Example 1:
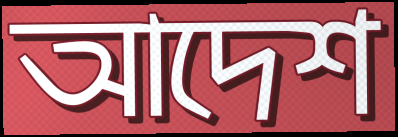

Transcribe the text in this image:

আদেশ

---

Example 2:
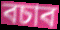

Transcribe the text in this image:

বচাব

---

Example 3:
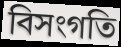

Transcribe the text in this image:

বিসংগতি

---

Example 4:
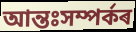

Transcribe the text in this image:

আন্তঃসম্পৰ্কৰ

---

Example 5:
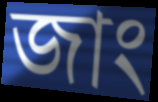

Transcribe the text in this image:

জাং